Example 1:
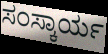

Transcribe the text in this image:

ಸಂಸ್ಕಾರ್ಯ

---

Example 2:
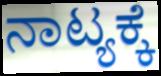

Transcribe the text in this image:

ನಾಟ್ಯಕ್ಕೆ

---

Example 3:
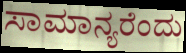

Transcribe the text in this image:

ಸಾಮಾನ್ಯರೆಂದು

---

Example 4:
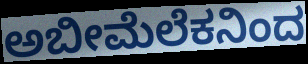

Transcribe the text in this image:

ಅಬೀಮೆಲೆಕನಿಂದ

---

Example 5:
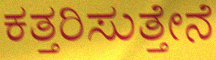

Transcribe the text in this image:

ಕತ್ತರಿಸುತ್ತೇನೆ